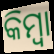
କିମ୍ବା